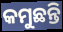
କମୁଛନ୍ତି